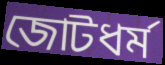
জোটধর্ম